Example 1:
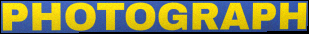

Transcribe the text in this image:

PHOTOGRAPH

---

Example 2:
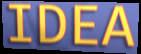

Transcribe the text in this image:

IDEA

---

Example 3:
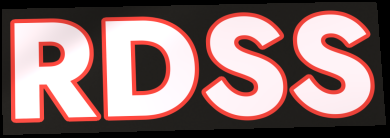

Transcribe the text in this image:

RDSS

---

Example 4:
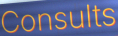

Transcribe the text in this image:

Consults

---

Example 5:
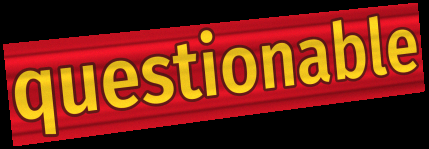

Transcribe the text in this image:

questionable